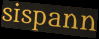
sispann